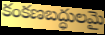
కంకణబద్ధులమై